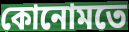
কোনোমতে